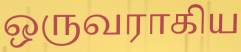
ஒருவராகிய